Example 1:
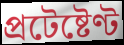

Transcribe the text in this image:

প্ৰটেষ্টেণ্ট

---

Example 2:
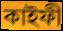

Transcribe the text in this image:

কাইফী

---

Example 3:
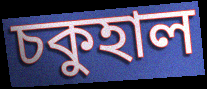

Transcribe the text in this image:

চকুহাল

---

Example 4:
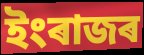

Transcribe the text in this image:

ইংৰাজৰ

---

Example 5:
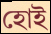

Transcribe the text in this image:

হোই